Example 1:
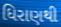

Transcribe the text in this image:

ધિરાણથી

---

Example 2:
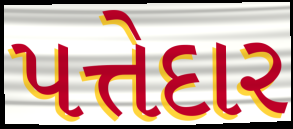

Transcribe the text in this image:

પત્તેદાર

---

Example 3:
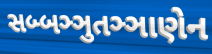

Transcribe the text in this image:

સબ્બઞ્ઞુતઞ્ઞાણેન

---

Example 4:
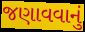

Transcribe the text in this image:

જણાવવાનું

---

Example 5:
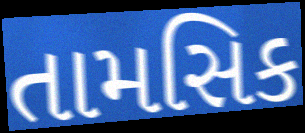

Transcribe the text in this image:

તામસિક